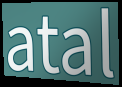
atal